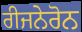
ਰੀਜਨੇਰੋਨ